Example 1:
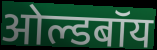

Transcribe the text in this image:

ओल्डबॉय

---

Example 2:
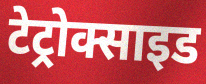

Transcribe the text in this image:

टेट्रोक्साइड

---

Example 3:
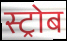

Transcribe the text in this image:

स्ट्रोब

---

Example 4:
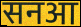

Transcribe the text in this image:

सनआ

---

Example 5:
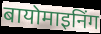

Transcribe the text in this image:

बायोमाइनिंग